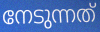
നേടുന്നത്